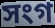
সংগ